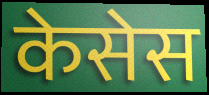
केसेस